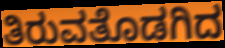
ತಿರುವತೊಡಗಿದ